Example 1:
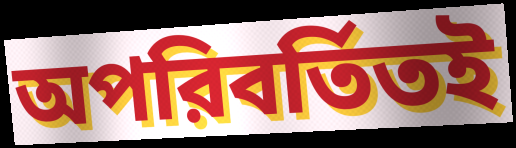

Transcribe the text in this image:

অপরিবর্তিতই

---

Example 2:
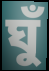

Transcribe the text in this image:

ঘুঁ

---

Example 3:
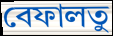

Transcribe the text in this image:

বেফালতু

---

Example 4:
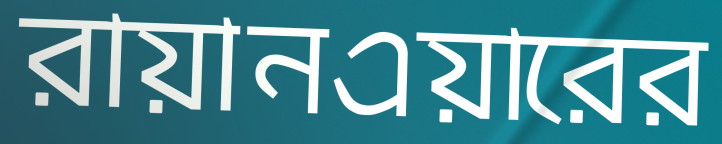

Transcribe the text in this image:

রায়ানএয়ারের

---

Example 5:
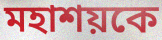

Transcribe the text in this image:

মহাশয়কে